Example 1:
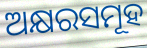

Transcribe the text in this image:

ଅକ୍ଷରସମୂହ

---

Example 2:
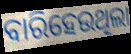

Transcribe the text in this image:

ବାରିହେଉଥିଲା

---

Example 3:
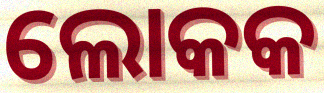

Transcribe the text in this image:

ଲୋକକ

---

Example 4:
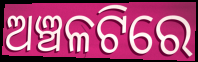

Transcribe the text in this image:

ଅଞ୍ଚଳଟିରେ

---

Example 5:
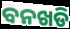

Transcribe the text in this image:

ବନଖଡି